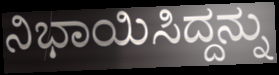
ನಿಭಾಯಿಸಿದ್ದನ್ನು